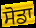
ਸੋਡਾ